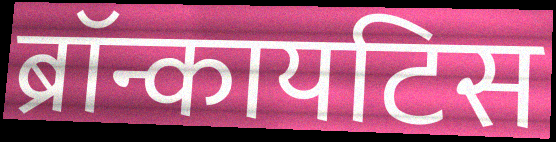
ब्रॉन्कायटिस